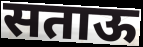
सताऊ